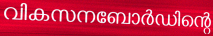
വികസനബോർഡിന്റെ